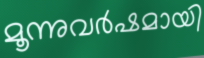
മൂന്നുവർഷമായി